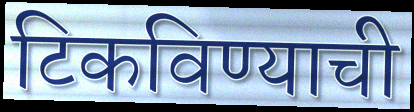
टिकविण्याची